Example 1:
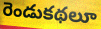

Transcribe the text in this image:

రెండుకథలూ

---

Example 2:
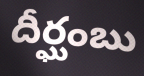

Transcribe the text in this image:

దీర్ఘంబు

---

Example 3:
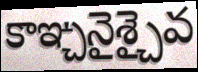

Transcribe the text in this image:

కాఞ్చనైశ్చైవ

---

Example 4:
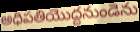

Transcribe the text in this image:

అధిపతియొద్దనుండెను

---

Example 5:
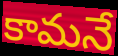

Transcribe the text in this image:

కామనే